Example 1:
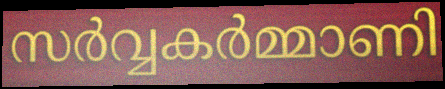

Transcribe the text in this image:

സർവ്വകർമ്മാണി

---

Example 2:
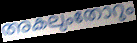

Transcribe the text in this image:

അകലുംതോറും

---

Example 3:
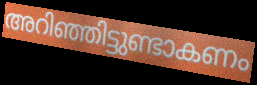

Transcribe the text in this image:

അറിഞ്ഞിട്ടുണ്ടാകണം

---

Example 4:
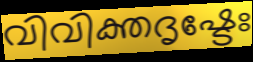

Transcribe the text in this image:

വിവിക്തദൃഷ്ടേഃ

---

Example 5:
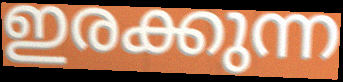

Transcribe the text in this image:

ഇരക്കുന്ന